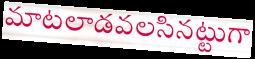
మాటలాడవలసినట్టుగా